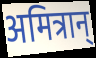
अमित्रान्